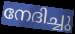
നേദിച്ചു